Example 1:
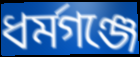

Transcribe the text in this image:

ধর্মগঞ্জে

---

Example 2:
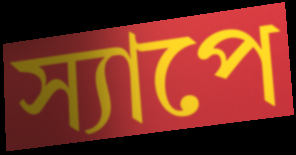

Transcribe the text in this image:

স্যাপে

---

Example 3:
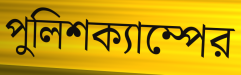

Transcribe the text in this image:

পুলিশক্যাম্পের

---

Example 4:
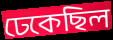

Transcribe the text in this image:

ঢেকেছিল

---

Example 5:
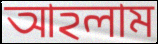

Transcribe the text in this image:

আহলাম